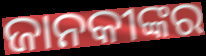
ଜାନକୀଙ୍କର